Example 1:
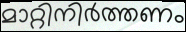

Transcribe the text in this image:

മാറ്റിനിർത്തണം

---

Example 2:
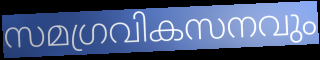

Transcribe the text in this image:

സമഗ്രവികസനവും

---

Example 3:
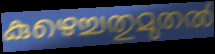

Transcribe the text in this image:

കുഴെച്ചതുമുതൽ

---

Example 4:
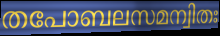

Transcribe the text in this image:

തപോബലസമന്വിതഃ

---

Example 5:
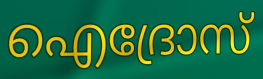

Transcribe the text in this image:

ഐദ്രോസ്